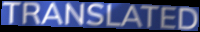
TRANSLATED